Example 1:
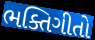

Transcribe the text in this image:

ભક્તિગીતો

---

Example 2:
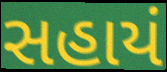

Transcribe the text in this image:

સહાયં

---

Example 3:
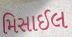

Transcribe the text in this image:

મિસાઈલ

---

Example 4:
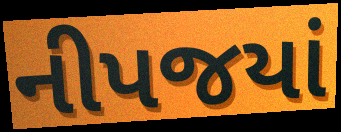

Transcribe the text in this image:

નીપજયાં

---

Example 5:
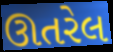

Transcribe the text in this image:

ઊતરેલ